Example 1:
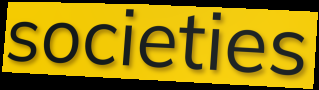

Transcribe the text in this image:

societies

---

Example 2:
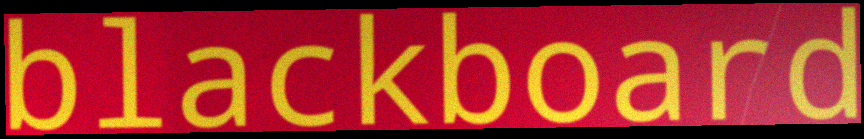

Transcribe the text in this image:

blackboard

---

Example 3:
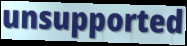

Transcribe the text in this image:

unsupported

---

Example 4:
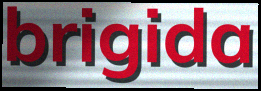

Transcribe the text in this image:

brigida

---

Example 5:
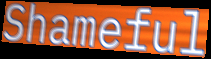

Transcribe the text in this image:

Shameful